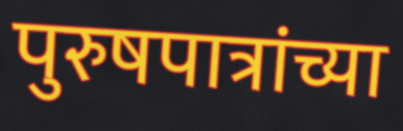
पुरुषपात्रांच्या